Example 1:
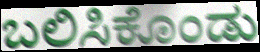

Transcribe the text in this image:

ಬಲಿಸಿಕೊಂಡು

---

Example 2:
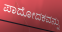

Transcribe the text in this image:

ಪಾದೋದಕವನ್ನು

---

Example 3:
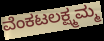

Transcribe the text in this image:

ವೆಂಕಟಲಕ್ಷ್ಮಮ್ಮ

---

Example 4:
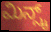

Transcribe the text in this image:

ಮಿನ್ಸ್ಕ್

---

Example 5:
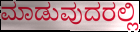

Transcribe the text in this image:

ಮಾಡುವುದರಲ್ಲಿ